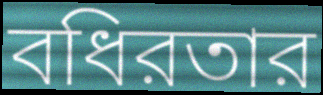
বধিরতার